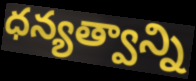
ధన్యత్వాన్ని